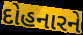
દોહનારને